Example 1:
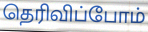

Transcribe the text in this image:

தெரிவிப்போம்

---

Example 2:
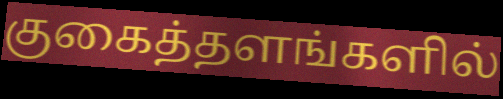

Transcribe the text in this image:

குகைத்தளங்களில்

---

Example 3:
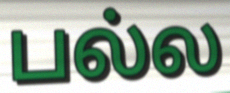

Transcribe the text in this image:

பல்ல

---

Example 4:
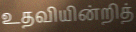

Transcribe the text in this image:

உதவியின்றித்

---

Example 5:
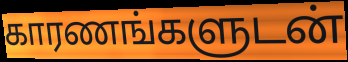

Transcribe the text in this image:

காரணங்களுடன்